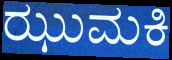
ಝುಮಕಿ